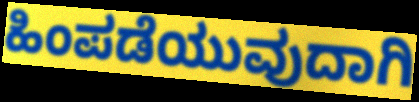
ಹಿಂಪಡೆಯುವುದಾಗಿ